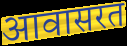
आवासरत